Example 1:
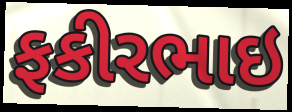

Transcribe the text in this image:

ફકીરભાઇ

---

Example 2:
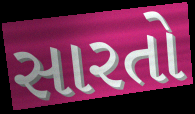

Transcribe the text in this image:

સારતો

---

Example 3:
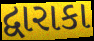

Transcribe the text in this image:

દ્વારાકા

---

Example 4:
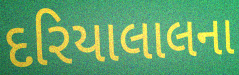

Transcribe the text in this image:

દરિયાલાલના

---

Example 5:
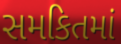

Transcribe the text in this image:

સમકિતમાં